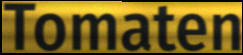
Tomaten